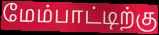
மேம்பாட்டிற்கு